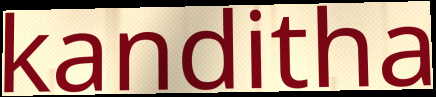
kanditha